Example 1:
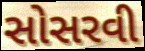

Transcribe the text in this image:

સોસરવી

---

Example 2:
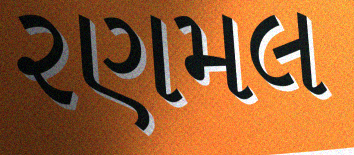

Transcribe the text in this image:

રણમલ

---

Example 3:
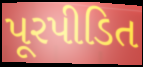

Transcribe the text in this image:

પૂરપીડિત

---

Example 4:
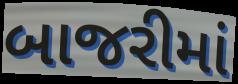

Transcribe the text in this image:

બાજરીમાં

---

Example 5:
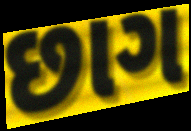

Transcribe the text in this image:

છાગ